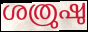
ശത്രുഷു